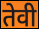
तेवी